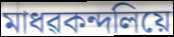
মাধৱকন্দলিয়ে